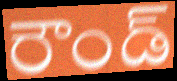
రౌండ్